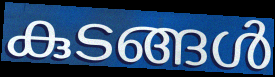
കുടങ്ങൾ